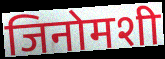
जिनोमशी